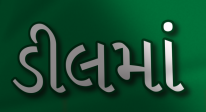
ડીલમાં